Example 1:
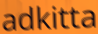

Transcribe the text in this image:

adkitta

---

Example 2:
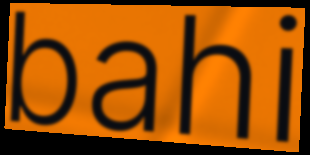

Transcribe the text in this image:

bahi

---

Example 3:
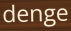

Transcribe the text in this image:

denge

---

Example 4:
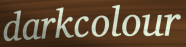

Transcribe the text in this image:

darkcolour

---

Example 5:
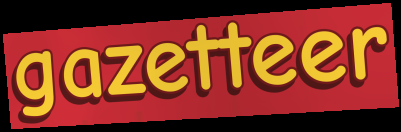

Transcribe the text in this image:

gazetteer